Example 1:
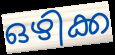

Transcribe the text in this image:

ഒഴിക്ക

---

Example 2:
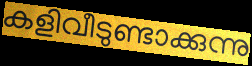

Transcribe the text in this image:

കളിവീടുണ്ടാക്കുന്നു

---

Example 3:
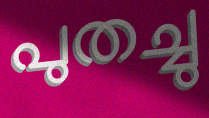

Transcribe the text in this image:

പുതച്ചു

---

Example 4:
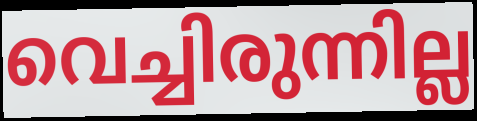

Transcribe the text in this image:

വെച്ചിരുന്നില്ല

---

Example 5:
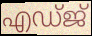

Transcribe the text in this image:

എഡ്ജ്